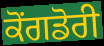
ਕੋਂਗਡੋਰੀ